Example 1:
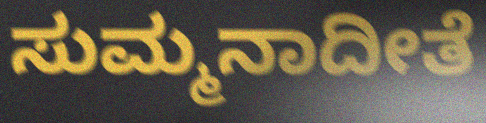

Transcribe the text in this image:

ಸುಮ್ಮನಾದೀತೆ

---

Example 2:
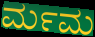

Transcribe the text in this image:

ರ್ಮಮ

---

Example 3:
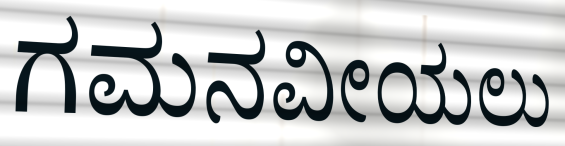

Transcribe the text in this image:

ಗಮನವೀಯಲು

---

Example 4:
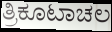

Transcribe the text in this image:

ತ್ರಿಕೂಟಾಚಲ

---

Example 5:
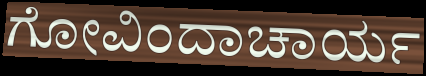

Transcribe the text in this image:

ಗೋವಿಂದಾಚಾರ್ಯ